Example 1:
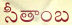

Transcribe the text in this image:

సీతాంబ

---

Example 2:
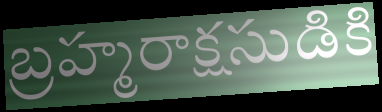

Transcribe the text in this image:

బ్రహ్మరాక్షసుడికి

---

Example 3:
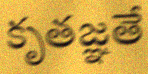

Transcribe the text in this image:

కృతజ్ఞతే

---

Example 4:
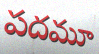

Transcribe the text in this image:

పదమూ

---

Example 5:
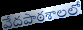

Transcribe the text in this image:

వేదపాఠశాలలో